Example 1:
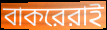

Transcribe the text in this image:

বাকরেরাই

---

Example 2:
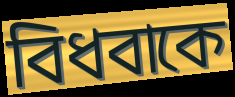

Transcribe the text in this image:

বিধবাকে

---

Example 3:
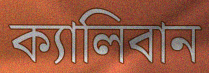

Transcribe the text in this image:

ক্যালিবান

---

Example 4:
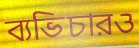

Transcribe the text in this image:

ব্যভিচারও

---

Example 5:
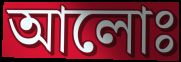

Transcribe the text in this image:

আলোঃ